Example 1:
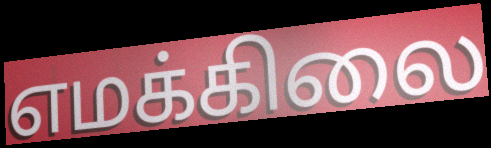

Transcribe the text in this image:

எமக்கிலை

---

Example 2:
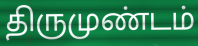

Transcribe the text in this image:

திருமுண்டம்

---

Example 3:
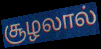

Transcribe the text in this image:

சூழலால்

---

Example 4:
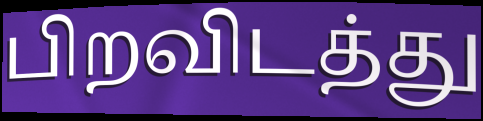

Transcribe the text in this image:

பிறவிடத்து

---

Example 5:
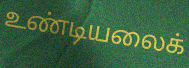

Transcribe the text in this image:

உண்டியலைக்